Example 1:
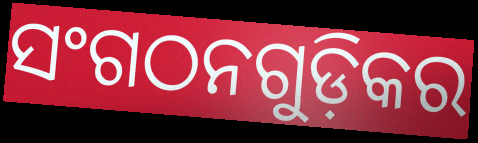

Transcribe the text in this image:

ସଂଗଠନଗୁଡ଼ିକର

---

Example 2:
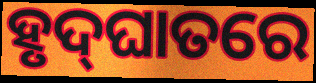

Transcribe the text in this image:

ହୃଦ୍‌ଘାତରେ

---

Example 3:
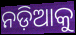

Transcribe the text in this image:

ନଡ଼ିଆକୁ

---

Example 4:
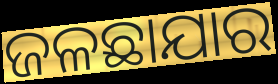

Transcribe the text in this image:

ଜଳଛାଯାର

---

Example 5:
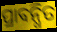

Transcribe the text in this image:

ପ୍ରାବନ୍ଧିତ